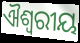
ଐଶ୍ୱରୀୟ